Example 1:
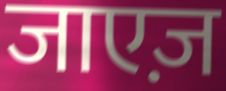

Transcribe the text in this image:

जाएज़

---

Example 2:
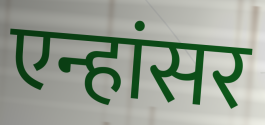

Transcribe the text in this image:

एन्हांसर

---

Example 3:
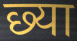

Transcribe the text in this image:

छ्या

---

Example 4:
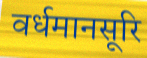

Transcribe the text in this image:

वर्धमानसूरि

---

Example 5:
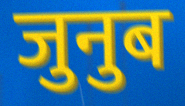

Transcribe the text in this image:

जुनुब